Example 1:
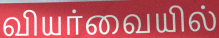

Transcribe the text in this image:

வியர்வையில்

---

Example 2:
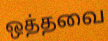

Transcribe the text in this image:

ஒத்தவை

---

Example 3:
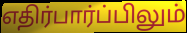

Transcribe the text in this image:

எதிர்பார்ப்பிலும்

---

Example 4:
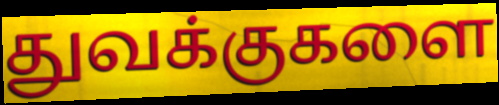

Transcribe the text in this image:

துவக்குகளை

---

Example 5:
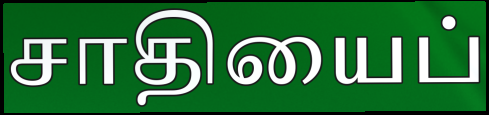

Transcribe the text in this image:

சாதியைப்